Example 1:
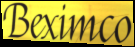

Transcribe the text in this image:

Beximco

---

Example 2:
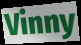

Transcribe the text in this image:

Vinny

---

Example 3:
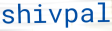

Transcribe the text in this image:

shivpal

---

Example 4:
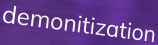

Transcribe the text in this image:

demonitization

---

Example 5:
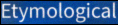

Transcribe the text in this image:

Etymological